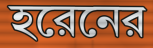
হরেনের